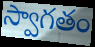
స్వాగతం